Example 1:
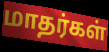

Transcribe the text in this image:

மாதர்கள்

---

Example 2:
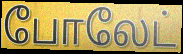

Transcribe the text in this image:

போலேட்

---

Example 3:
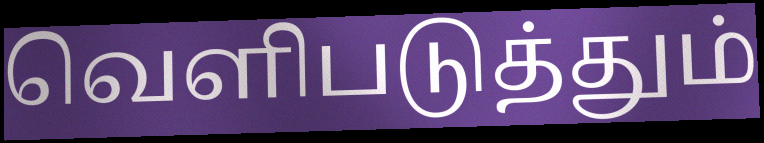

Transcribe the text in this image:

வெளிபடுத்தும்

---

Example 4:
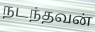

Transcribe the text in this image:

நடந்தவன்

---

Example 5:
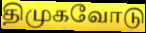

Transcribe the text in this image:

திமுகவோடு